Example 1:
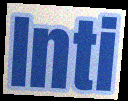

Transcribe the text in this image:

Inti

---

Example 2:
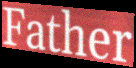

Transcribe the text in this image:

Father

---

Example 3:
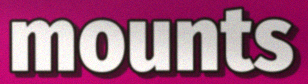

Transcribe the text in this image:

mounts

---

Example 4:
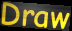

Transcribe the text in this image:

Draw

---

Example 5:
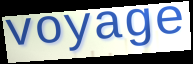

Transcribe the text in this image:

voyage